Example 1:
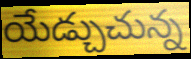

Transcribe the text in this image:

యేడ్చుచున్న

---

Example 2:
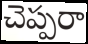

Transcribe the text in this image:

చెప్పరా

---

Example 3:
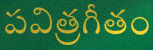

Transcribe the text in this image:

పవిత్రగీతం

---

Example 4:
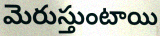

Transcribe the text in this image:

మెరుస్తుంటాయి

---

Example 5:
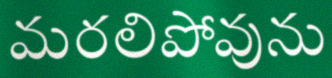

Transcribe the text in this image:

మరలిపోవును